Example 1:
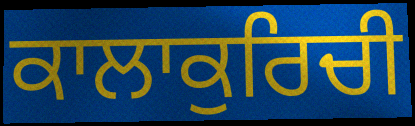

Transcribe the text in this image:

ਕਾਲਾਕੁਰਿਚੀ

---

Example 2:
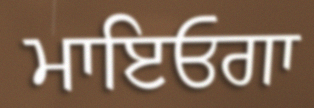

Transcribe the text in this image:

ਮਾਇਓਗਾ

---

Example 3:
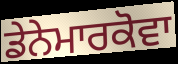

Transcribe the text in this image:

ਡੇਨੇਮਾਰਕੋਵਾ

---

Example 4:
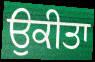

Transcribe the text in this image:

ਉਕੀਤਾ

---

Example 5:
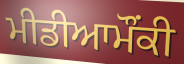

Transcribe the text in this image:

ਮੀਡੀਆਮੌਂਕੀ